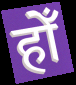
होँ